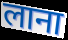
लाना